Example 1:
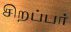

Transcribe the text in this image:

சிறப்பர்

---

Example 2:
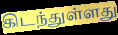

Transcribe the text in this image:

கிடந்துள்ளது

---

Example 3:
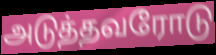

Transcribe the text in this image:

அடுத்தவரோடு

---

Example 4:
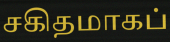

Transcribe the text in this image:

சகிதமாகப்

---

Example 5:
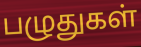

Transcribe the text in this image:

பழுதுகள்